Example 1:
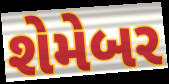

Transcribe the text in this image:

શેમેબર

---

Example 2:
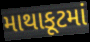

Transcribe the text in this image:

માથાકૂટમાં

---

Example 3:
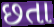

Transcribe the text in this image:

છતા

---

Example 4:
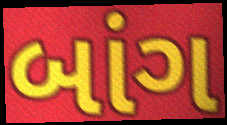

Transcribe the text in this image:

બાંગ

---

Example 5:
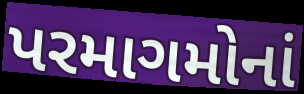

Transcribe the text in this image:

પરમાગમોનાં